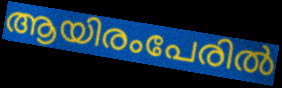
ആയിരംപേരിൽ